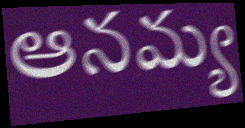
ఆనమ్య